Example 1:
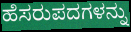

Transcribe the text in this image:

ಹೆಸರುಪದಗಳನ್ನು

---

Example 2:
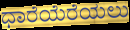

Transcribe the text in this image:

ಧಾರೆಯೆರೆಯಲು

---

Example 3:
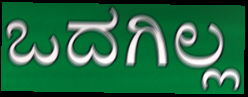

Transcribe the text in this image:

ಒದಗಿಲ್ಲ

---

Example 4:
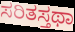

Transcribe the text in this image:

ಸರಿತಸ್ತಥಾ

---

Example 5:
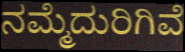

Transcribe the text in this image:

ನಮ್ಮೆದುರಿಗಿವೆ